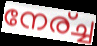
നേര്ച്ച